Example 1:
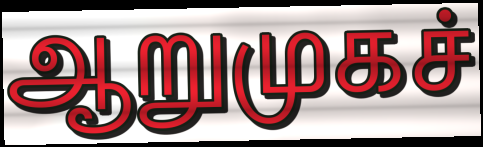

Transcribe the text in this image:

ஆறுமுகச்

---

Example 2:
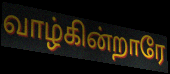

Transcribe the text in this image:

வாழ்கின்றாரே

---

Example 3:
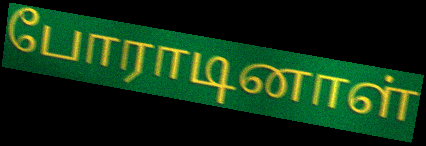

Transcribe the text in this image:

போராடினாள்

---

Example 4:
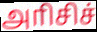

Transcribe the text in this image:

அரிசிச்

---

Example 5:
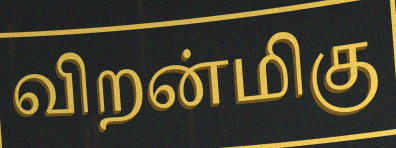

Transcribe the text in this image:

விறன்மிகு